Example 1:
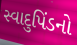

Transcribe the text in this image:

સ્વાદુપિંડનો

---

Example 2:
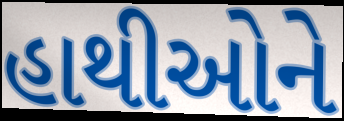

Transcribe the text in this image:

હાથીઓને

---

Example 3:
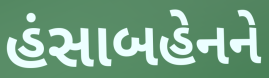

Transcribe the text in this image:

હંસાબહેનને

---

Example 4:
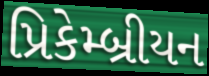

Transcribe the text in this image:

પ્રિકેમ્બ્રીયન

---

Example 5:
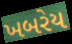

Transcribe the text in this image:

ખબરેય